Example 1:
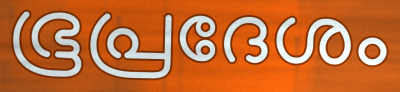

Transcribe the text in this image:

ഭൂപ്രദേശം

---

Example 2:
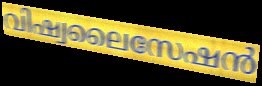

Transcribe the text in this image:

വിഷ്വലൈസേഷൻ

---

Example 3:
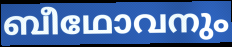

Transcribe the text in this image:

ബീഥോവനും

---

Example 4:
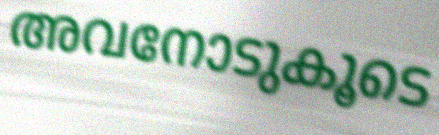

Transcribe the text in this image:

അവനോടുകൂടെ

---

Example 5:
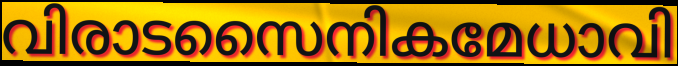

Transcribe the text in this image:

വിരാടസൈനികമേധാവി